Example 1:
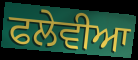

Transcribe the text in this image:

ਫਲੇਵੀਆ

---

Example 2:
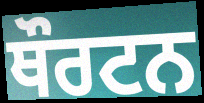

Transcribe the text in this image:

ਥੌਰਟਨ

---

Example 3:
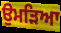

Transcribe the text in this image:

ਉਮੜਿਆ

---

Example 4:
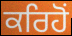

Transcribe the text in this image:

ਕਰਿਹੋਂ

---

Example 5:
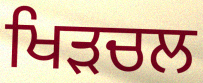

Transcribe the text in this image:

ਖਿੜਚਲ